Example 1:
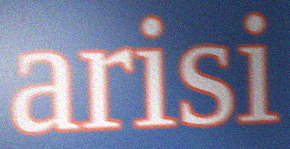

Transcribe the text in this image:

arisi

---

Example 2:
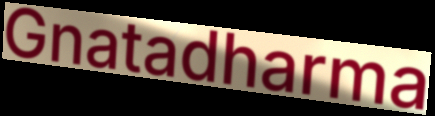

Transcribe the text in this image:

Gnatadharma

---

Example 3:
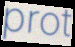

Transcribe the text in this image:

prot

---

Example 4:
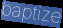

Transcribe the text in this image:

baptize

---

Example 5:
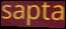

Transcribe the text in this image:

sapta